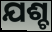
ଯଶ୍ଚ